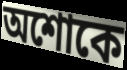
অশোকে